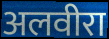
अलवीरा